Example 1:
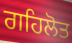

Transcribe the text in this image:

ਗਹਿਲੋਤ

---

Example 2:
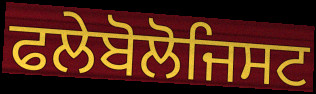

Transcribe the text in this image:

ਫਲੇਬੋਲੋਜਿਸਟ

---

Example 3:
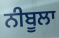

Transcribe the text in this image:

ਨੀਬੂਲਾ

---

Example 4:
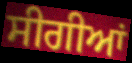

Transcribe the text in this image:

ਸੀਗੀਆਂ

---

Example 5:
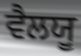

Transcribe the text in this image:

ਵੈਲਯੂ